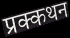
प्रक्कथन